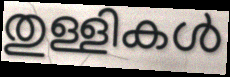
തുള്ളികൾ